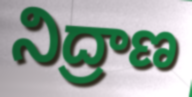
నిద్రాణ